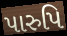
પારુપિ